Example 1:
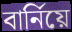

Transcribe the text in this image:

বার্নিয়ে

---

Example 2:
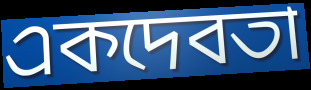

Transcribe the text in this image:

একদেবতা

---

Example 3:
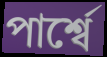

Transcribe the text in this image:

পার্শ্বে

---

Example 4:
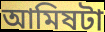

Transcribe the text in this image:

আমিষটা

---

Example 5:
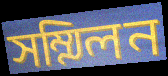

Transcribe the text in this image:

সম্মিলন